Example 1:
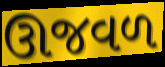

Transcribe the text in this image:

ઊજવળ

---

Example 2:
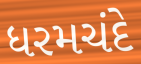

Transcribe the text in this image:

ધરમચંદે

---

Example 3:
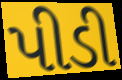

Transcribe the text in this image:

પીડી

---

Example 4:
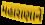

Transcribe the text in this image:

મહારાણાને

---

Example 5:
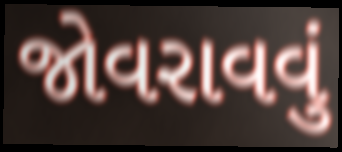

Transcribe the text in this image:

જોવરાવવું